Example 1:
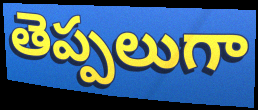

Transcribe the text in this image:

తెప్పలుగా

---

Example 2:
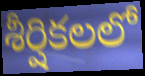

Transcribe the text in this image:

శీర్షికలలో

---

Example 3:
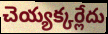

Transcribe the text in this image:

చెయ్యక్కర్లేదు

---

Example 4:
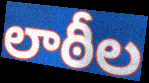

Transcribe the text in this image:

లాఠీల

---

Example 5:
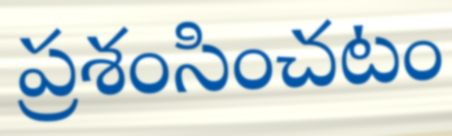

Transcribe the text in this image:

ప్రశంసించటం